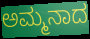
ಅಮ್ಮನಾದ